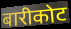
बारीकोट